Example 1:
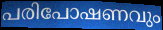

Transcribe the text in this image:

പരിപോഷണവും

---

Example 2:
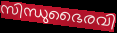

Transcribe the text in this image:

സിന്ധുഭൈരവി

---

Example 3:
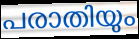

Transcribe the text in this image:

പരാതിയും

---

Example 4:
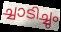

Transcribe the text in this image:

ച്ചാടിച്ചും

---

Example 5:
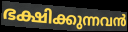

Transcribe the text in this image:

ഭക്ഷിക്കുന്നവൻ